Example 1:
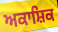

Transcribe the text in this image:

ਅਕਾਸ਼ਿਕ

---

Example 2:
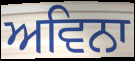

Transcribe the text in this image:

ਅਵਿਨਾ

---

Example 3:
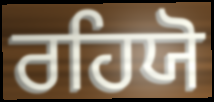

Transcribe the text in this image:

ਰਹਿਯੋ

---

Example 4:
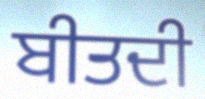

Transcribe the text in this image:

ਬੀਤਦੀ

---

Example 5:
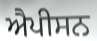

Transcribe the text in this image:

ਐਪੀਸਨ